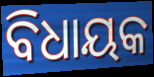
ବିଧାୟକ